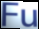
Fu